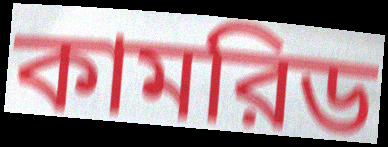
কামরিড